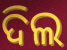
ଦିଲ